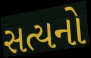
સત્યનો